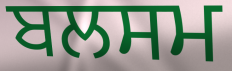
ਬਲਸਮ